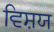
ਵਿਸ਼ਯ